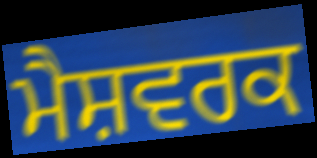
ਮੈਸ਼ਵਰਕ